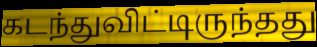
கடந்துவிட்டிருந்தது